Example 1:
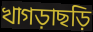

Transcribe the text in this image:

খাগড়াছড়ি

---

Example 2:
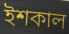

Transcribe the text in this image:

ইশকাল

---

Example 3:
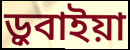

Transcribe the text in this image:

ড়ুবাইয়া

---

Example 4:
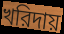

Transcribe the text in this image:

খরিদায়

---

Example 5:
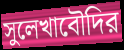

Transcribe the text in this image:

সুলেখাবৌদির